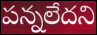
పన్నలేదని